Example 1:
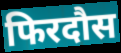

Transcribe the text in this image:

फिरदौस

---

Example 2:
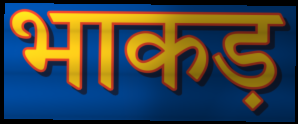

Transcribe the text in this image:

भाकड़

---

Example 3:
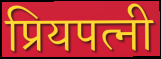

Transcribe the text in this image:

प्रियपत्नी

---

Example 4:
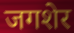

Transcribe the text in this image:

जगशेर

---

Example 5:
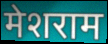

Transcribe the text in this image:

मेशराम